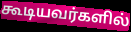
கூடியவர்களில்